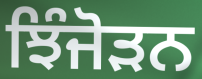
ਝਿੰਜੋੜਨ